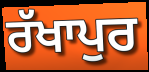
ਰੱਖਾਪੁਰ